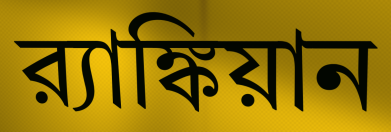
র‍্যাঙ্কিয়ান